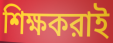
শিক্ষকরাই